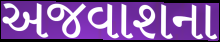
અજવાશના